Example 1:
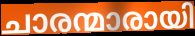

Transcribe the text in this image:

ചാരന്മാരായി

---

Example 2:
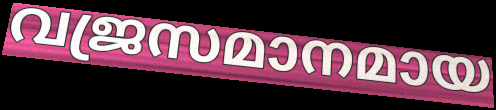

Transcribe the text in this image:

വജ്രസമാനമായ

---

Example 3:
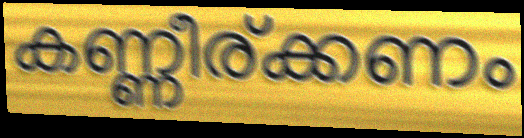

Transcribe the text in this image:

കണ്ണീര്ക്കണം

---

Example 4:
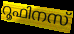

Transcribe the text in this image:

റൂഫിനസ്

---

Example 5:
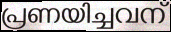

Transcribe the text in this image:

പ്രണയിച്ചവന്